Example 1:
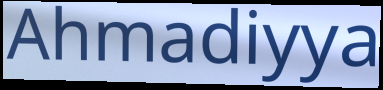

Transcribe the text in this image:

Ahmadiyya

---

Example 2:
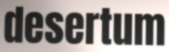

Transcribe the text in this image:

desertum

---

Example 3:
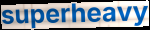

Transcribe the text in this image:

superheavy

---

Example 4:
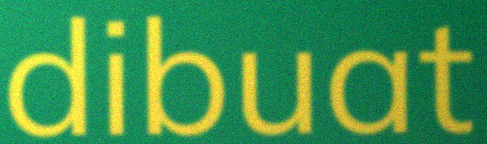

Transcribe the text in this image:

dibuat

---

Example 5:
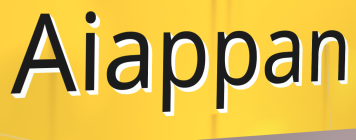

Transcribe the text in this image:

Aiappan